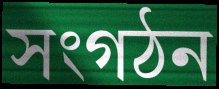
সংগঠন